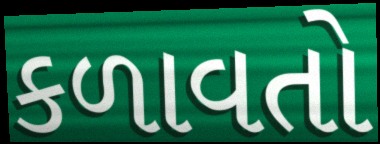
કળાવતો